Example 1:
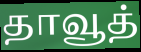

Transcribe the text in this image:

தாவூத்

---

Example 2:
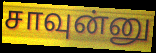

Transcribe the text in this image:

சாவுன்னு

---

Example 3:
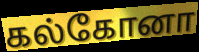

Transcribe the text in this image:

கல்கோனா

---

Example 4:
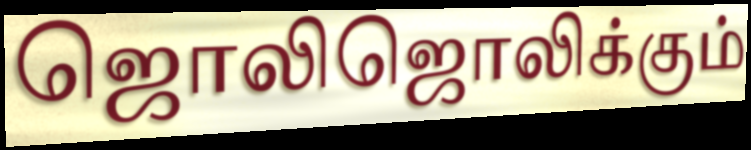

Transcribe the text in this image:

ஜொலிஜொலிக்கும்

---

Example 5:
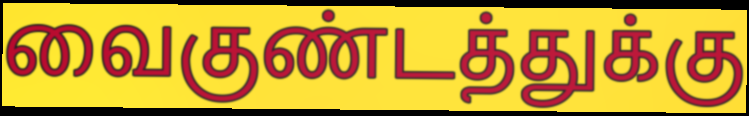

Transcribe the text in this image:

வைகுண்டத்துக்கு